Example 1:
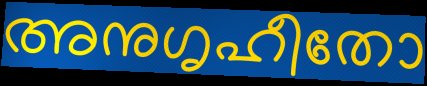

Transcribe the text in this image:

അനുഗൃഹീതോ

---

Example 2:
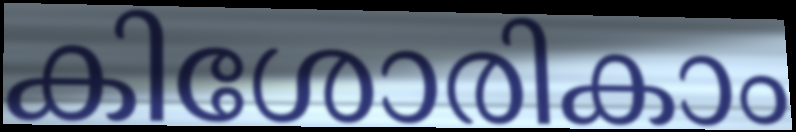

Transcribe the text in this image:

കിശോരികാം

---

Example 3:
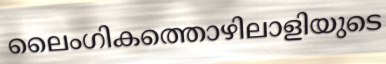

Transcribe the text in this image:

ലൈംഗികത്തൊഴിലാളിയുടെ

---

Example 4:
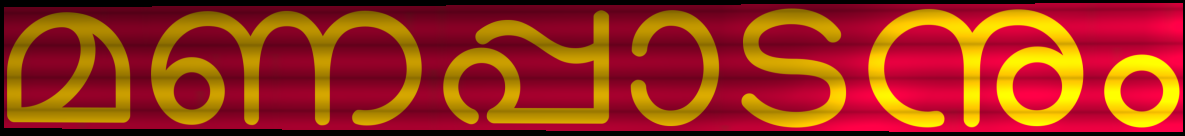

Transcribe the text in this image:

മണപ്പാടനും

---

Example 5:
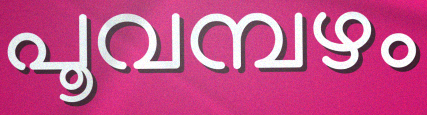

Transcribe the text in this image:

പൂവമ്പഴം